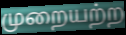
முறையற்ற